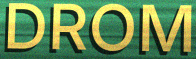
DROM